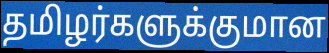
தமிழர்களுக்குமான